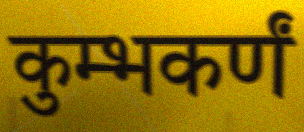
कुम्भकर्णं